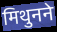
मिथुनने